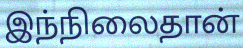
இந்நிலைதான்